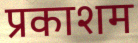
प्रकाशम